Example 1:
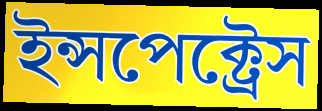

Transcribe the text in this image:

ইন্সপেক্ট্রেস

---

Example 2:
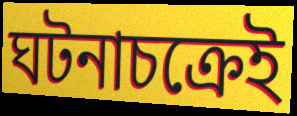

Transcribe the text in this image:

ঘটনাচক্রেই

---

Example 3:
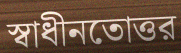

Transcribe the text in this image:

স্বাধীনতোত্তর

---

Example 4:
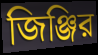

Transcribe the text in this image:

জিঞ্জির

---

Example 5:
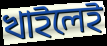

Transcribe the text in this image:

খাইলেই